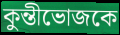
কুন্তীভোজকে